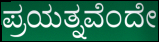
ಪ್ರಯತ್ನವೆಂದೇ